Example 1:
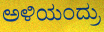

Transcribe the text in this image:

ಅಳಿಯಂದ್ರು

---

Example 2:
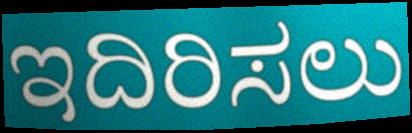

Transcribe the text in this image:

ಇದಿರಿಸಲು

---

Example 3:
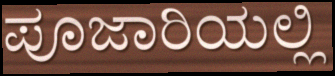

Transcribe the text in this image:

ಪೂಜಾರಿಯಲ್ಲಿ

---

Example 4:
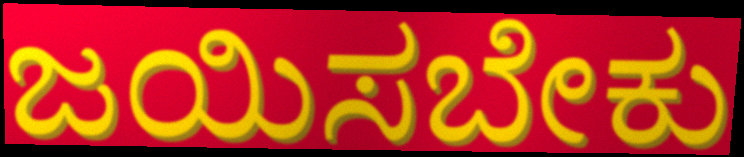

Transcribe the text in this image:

ಜಯಿಸಬೇಕು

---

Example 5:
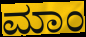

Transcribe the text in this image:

ಮಾಂ